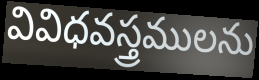
వివిధవస్త్రములను